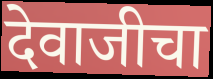
देवाजीचा